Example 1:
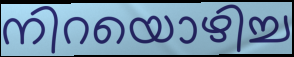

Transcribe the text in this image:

നിറയൊഴിച്ച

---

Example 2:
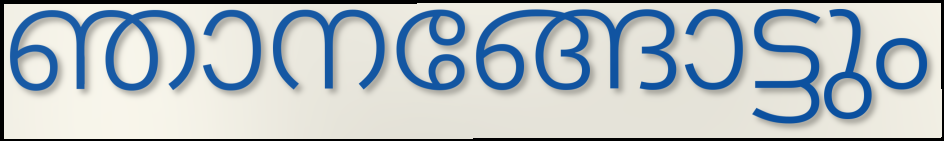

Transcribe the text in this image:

ഞാനങ്ങോട്ടും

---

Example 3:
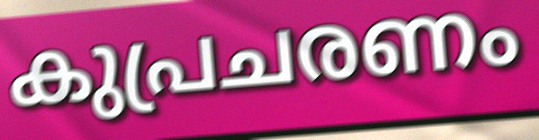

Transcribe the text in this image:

കുപ്രചരണം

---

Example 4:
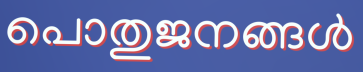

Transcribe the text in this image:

പൊതുജനങ്ങൾ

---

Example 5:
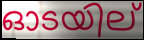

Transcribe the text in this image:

ഓടയില്